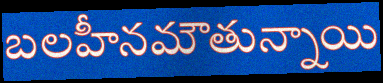
బలహీనమౌతున్నాయి